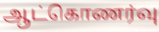
ஆட்கொணர்வு